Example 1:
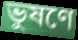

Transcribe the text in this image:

ভুষণে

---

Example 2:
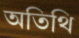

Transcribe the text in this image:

অতিথি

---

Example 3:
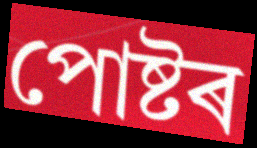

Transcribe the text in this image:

পোষ্টৰ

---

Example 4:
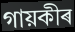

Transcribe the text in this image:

গায়কীৰ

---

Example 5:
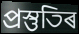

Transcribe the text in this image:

প্ৰস্তুতিৰ